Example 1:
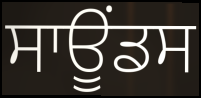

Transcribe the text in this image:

ਸਾਊਂਡਸ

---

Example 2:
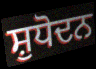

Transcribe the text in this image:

ਸ਼ੁਧੋਦਨ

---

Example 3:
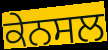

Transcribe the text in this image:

ਕੇਨਸਲ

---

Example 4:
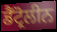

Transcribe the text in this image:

ਡੈਂਟ੍ਰੋਲੀਨ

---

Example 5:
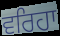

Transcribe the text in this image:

ਵਰਿਹਾ